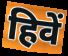
हिवें